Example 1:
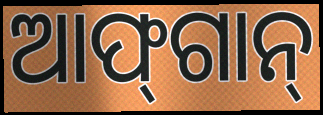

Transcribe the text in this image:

ଆଫ୍‌ଗାନ୍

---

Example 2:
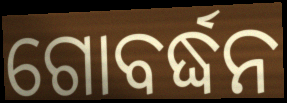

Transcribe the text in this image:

ଗୋବର୍ଦ୍ଧନ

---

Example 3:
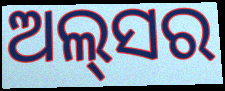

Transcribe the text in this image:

ଅଲ୍‌ସର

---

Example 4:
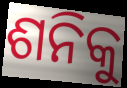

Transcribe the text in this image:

ଶନିକୁ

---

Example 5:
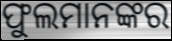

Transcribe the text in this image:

ଫୁଲମାନଙ୍କର